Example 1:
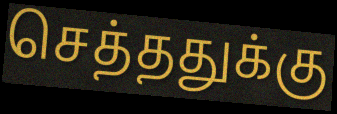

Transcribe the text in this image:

செத்ததுக்கு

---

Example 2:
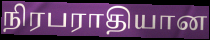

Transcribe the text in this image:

நிரபராதியான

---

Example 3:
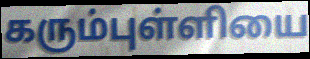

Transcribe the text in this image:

கரும்புள்ளியை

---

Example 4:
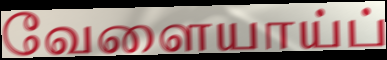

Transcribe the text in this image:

வேளையாய்ப்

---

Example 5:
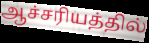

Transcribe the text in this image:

ஆச்சரியத்தில்